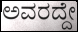
ಅವರದ್ದೇ